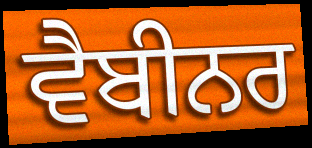
ਵੈਬੀਨਰ